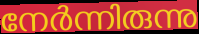
നേർന്നിരുന്നു